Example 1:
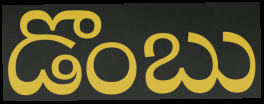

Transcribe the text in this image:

డొంబు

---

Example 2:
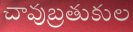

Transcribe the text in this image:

చావుబ్రతుకుల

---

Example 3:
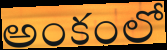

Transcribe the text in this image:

అంకంలో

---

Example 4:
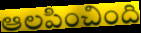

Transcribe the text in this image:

ఆలపించింది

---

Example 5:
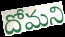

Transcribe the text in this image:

దోమని